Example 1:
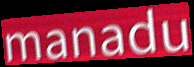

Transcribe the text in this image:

manadu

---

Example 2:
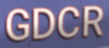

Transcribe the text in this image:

GDCR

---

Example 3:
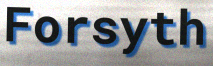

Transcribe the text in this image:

Forsyth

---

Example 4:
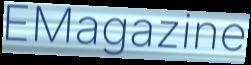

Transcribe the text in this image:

EMagazine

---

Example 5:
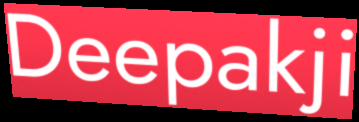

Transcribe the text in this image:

Deepakji